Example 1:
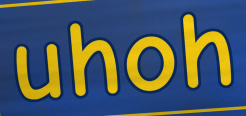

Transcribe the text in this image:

uhoh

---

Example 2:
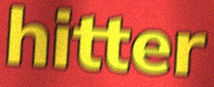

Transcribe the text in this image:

hitter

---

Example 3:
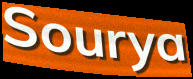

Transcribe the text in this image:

Sourya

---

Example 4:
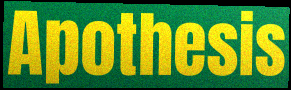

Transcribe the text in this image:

Apothesis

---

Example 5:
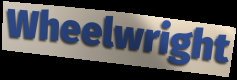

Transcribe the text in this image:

Wheelwright